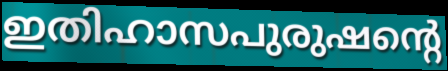
ഇതിഹാസപുരുഷന്റെ